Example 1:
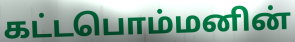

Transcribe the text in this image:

கட்டபொம்மனின்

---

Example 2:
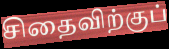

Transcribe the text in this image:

சிதைவிற்குப்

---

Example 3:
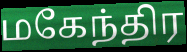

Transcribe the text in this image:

மகேந்திர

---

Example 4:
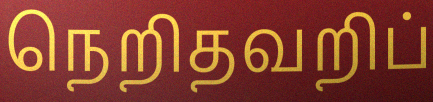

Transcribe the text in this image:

நெறிதவறிப்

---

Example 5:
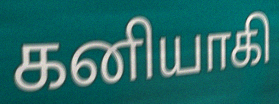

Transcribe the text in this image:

கனியாகி